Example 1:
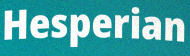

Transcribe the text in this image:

Hesperian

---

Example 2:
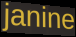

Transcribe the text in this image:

janine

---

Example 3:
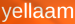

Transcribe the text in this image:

yellaam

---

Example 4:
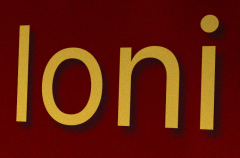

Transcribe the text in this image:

loni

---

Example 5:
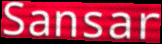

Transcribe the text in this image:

Sansar